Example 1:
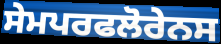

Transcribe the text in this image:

ਸੇਮਪਰਫਲੋਰੇਨਸ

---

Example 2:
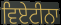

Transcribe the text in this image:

ਵਿਏਟੀਨਾ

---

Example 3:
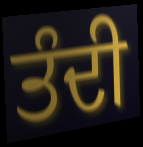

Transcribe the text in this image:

ਤੰਦੀ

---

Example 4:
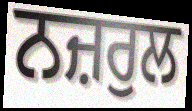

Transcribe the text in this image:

ਨਜ਼ਰੁਲ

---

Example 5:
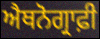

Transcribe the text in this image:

ਐਥਨੋਗ੍ਰਾਫ਼ੀ